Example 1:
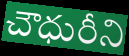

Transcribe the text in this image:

చౌధురీని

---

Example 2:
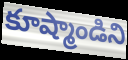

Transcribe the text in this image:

కూష్మాండిని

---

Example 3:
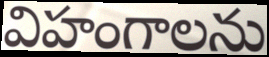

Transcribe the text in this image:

విహంగాలను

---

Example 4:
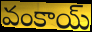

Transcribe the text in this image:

వంకాయ్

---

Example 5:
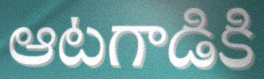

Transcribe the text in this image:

ఆటగాడికి